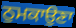
ਠੁਮਕਾਉਣਾ